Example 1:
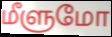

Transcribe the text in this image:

மீளுமோ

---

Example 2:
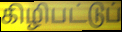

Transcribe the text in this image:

கிழிபட்டுப்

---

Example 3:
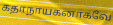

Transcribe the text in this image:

கதாநாயகனாகவே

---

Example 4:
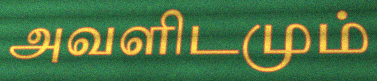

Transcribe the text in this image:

அவளிடமும்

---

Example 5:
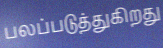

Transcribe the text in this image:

பலப்படுத்துகிறது